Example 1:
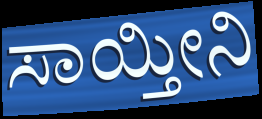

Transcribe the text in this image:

ಸಾಯ್ತೀನಿ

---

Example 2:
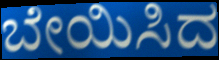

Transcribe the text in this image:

ಬೇಯಿಸಿದ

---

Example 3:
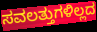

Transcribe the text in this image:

ಸವಲತ್ತುಗಳಿಲ್ಲದ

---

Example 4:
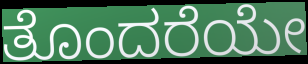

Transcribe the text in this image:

ತೊಂದರೆಯೇ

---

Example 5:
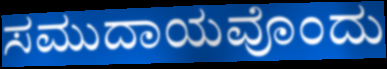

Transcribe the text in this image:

ಸಮುದಾಯವೊಂದು